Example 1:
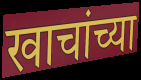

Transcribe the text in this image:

खाचांच्या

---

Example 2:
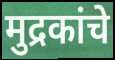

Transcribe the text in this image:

मुद्रकांचे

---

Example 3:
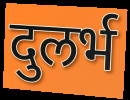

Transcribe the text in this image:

दुलर्भ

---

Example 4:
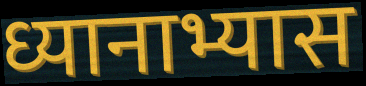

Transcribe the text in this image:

ध्यानाभ्यास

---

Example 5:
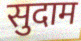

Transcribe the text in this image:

सुदाम